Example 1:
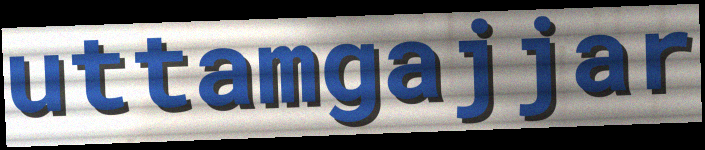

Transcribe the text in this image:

uttamgajjar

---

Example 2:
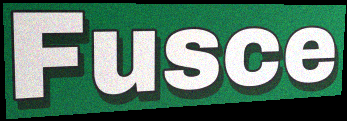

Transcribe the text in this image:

Fusce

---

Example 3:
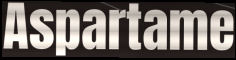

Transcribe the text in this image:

Aspartame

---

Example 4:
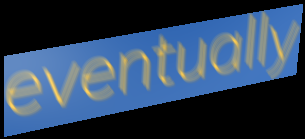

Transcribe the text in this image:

eventually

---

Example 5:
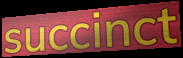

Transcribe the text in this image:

succinct